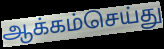
ஆக்கம்செய்து